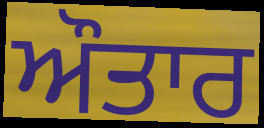
ਔਤਾਰ